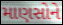
માણસોને